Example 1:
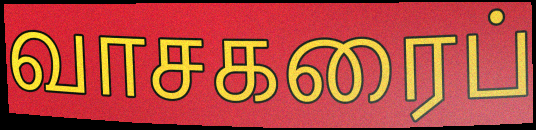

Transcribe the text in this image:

வாசகரைப்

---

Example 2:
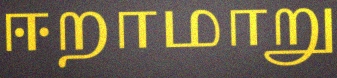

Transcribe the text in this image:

ஈறாமாறு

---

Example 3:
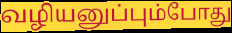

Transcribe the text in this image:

வழியனுப்பும்போது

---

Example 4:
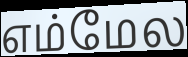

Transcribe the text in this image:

எம்மேல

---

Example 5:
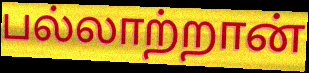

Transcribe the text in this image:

பல்லாற்றான்